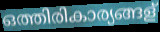
ഒത്തിരികാര്യങ്ങള്